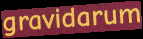
gravidarum